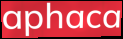
aphaca